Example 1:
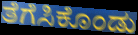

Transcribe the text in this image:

ತೆಗೆಸಿಕೊಂಡು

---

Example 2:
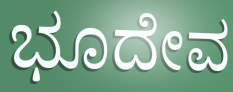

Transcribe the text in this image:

ಭೂದೇವ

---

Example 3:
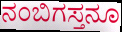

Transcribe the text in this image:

ನಂಬಿಗಸ್ತನೂ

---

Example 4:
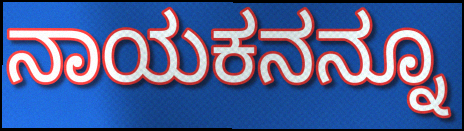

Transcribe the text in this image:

ನಾಯಕನನ್ನೂ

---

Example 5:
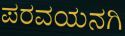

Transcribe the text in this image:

ಪರವಯನಗಿ